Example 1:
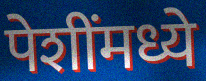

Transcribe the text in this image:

पेशींमध्ये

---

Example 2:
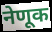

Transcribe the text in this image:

नेणूक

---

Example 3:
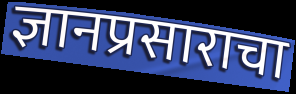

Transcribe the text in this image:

ज्ञानप्रसाराचा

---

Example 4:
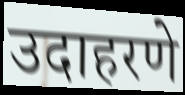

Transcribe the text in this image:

उदाहरणे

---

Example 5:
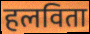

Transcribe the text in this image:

हलविता